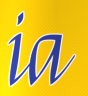
ia